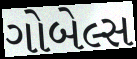
ગોબેલ્સ